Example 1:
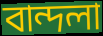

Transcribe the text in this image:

বান্দলা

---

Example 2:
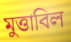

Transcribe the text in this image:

মুত্তাবিল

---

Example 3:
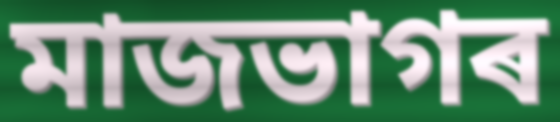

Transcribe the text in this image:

মাজভাগৰ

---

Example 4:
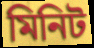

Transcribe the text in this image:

মিনিট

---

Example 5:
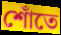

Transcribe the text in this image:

শোঁতে